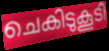
ചെകിടുകൂടി